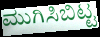
ಮುಗಿಸಿಬಿಟ್ಟ